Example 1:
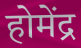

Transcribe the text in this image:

होमेंद्र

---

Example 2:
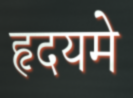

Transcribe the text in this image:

हृदयमे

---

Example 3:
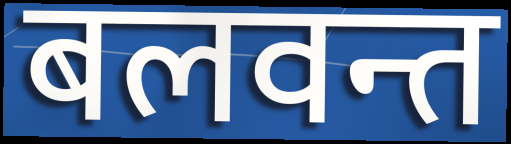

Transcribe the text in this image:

बलवन्त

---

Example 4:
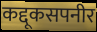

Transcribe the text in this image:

कद्दूकसपनीर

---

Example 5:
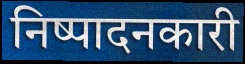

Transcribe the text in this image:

निष्पादनकारी